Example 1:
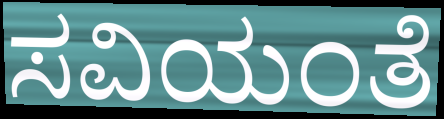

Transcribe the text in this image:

ಸವಿಯಂತೆ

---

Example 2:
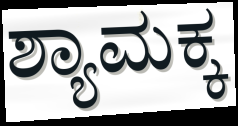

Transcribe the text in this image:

ಶ್ಯಾಮಕ್ಕ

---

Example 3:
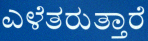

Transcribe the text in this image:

ಎಳೆತರುತ್ತಾರೆ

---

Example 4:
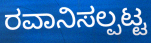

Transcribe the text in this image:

ರವಾನಿಸಲ್ಪಟ್ಟ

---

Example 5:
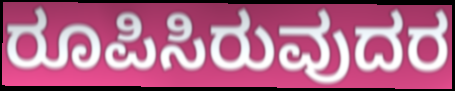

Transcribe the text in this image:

ರೂಪಿಸಿರುವುದರ